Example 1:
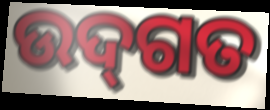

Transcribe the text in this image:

ଉଦ୍‌ଗତ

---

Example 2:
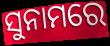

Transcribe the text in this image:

ସୁନାମରେ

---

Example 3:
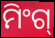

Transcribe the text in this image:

ମିଂଗ୍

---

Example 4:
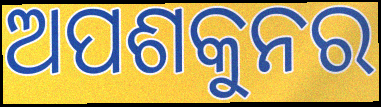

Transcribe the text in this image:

ଅପଶକୁନର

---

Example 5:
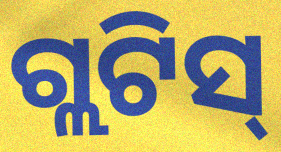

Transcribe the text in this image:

ଗ୍ଲଟିସ୍